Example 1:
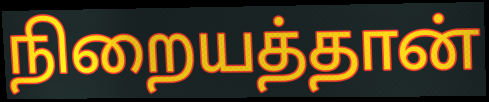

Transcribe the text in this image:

நிறையத்தான்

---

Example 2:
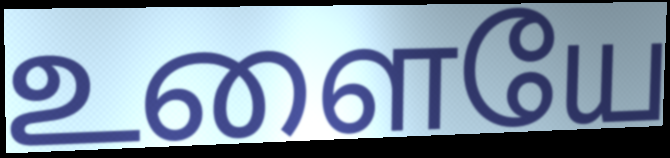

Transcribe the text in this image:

உளையே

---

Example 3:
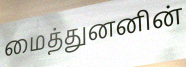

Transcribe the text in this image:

மைத்துனனின்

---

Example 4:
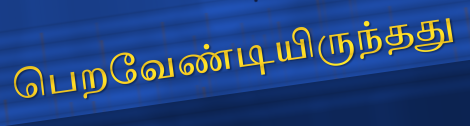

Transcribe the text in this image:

பெறவேண்டியிருந்தது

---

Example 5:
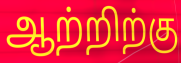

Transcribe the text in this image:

ஆற்றிற்கு